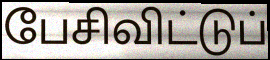
பேசிவிட்டுப்